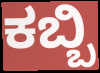
ಕಬ್ಬಿ